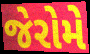
જેરોમે